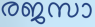
രജസാ